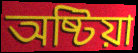
অষ্টিয়া